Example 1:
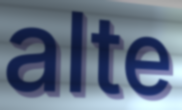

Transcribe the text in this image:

alte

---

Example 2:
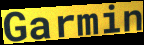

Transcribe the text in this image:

Garmin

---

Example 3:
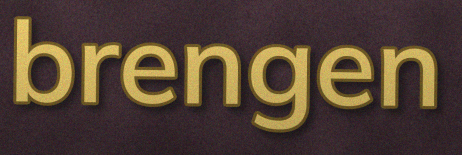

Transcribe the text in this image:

brengen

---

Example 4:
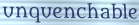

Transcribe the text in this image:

unquenchable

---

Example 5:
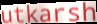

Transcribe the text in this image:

utkarsh